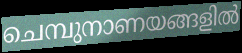
ചെമ്പുനാണയങ്ങളിൽ